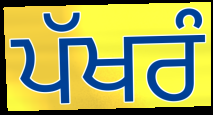
ਪੱਖਰੰ